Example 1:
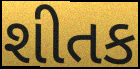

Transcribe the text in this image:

શીતક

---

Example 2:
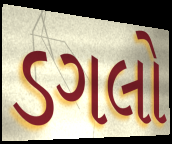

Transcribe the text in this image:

ડગલો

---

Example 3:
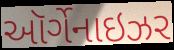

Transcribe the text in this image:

ઑર્ગેનાઇઝર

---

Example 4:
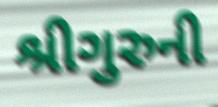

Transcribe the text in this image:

શ્રીગુરુની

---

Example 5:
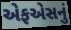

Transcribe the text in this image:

એફએસનું